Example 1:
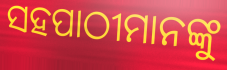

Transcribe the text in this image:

ସହପାଠୀମାନଙ୍କୁ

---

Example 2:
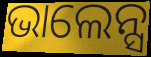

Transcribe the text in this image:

ଭାଲେନ୍ସ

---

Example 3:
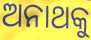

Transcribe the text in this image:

ଅନାଥକୁ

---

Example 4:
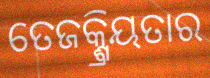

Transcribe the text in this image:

ତେଜକ୍ଶ୍ରିୟତାର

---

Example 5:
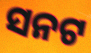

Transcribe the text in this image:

ସନଟ